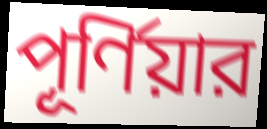
পূর্ণিয়ার